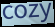
cozy